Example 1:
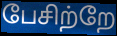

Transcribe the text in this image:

பேசிற்றே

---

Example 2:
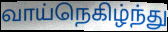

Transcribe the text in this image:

வாய்நெகிழ்ந்து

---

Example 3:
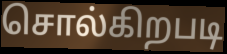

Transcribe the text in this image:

சொல்கிறபடி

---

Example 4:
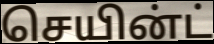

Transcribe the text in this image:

செயின்ட்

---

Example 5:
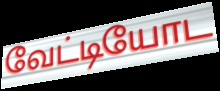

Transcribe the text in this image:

வேட்டியோட